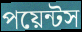
পয়েন্টস